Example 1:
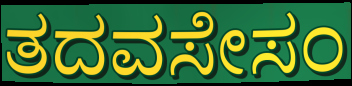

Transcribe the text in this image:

ತದವಸೇಸಂ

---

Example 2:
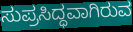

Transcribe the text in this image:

ಸುಪ್ರಸಿದ್ಧವಾಗಿರುವ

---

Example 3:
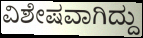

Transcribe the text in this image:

ವಿಶೇಷವಾಗಿದ್ದು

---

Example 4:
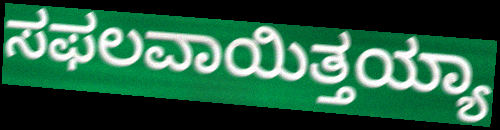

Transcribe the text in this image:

ಸಫಲವಾಯಿತ್ತಯ್ಯಾ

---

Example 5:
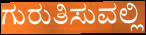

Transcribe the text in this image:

ಗುರುತಿಸುವಲ್ಲಿ